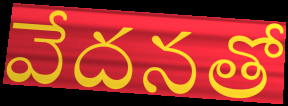
వేదనతో